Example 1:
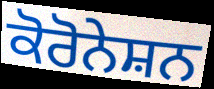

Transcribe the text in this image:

ਕੋਰੋਨੇਸ਼ਨ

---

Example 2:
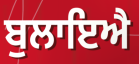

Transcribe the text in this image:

ਬੁਲਾਇਐ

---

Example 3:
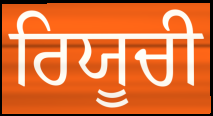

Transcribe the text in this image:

ਰਿਯੂਚੀ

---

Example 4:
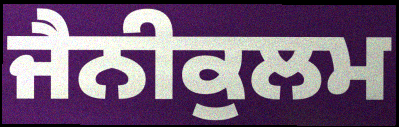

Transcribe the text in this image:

ਜੈਨੀਕੁਲਮ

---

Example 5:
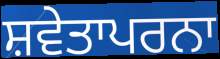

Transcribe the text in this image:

ਸ਼ਵੇਤਾਪਰਨਾ